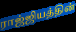
ராஜ்ஜியத்தின்